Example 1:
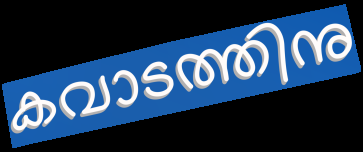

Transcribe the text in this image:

കവാടത്തിനു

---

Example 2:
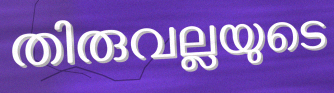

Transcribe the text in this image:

തിരുവല്ലയുടെ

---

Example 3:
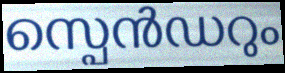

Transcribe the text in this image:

സ്പെൻഡറും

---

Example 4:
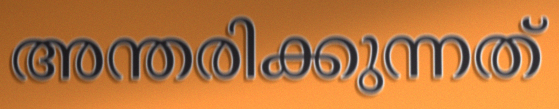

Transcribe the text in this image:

അന്തരിക്കുന്നത്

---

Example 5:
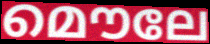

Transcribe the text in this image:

മൌലേ